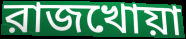
রাজখোয়া